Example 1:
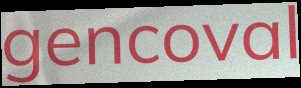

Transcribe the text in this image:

gencoval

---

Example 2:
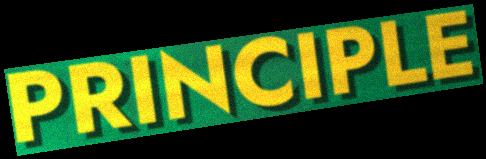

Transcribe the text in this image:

PRINCIPLE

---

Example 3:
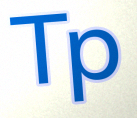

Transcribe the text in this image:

Tp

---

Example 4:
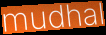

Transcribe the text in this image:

mudhal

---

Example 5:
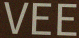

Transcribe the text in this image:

VEE